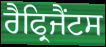
ਰੈਫ੍ਰਿਜੈਂਟਸ